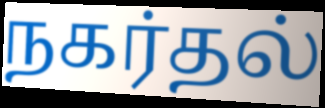
நகர்தல்